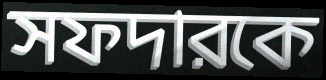
সফদারকে